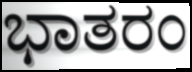
ಭಾತರಂ